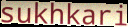
sukhkari